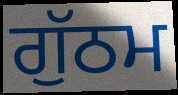
ਗੁੱਠਮ